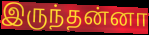
இருந்தன்னா